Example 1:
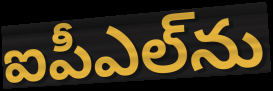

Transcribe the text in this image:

ఐపీఎల్‌ను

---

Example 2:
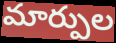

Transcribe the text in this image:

మార్పుల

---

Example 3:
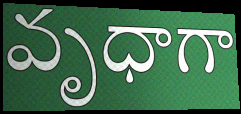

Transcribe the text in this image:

వృధాగా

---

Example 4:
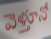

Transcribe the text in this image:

వెళ్తూనో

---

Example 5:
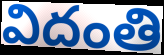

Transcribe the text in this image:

విదంతి